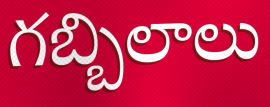
గబ్బిలాలు